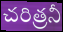
చరిత్రనీ